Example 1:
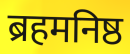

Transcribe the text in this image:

ब्रहमनिष्ठ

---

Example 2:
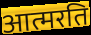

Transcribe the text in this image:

आत्मरति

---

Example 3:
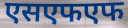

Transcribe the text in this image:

एसएफएफ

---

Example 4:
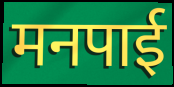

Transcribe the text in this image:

मनपाई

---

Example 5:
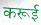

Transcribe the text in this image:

करूई